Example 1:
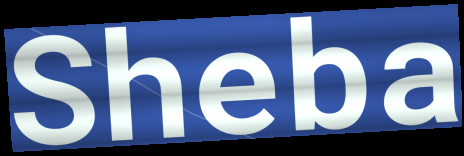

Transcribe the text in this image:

Sheba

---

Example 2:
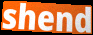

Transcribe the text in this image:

shend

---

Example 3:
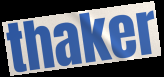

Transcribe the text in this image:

thaker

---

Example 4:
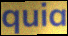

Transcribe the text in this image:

quia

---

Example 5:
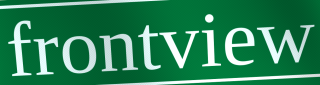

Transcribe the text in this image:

frontview